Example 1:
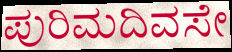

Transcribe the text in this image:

ಪುರಿಮದಿವಸೇ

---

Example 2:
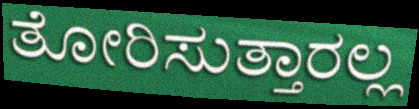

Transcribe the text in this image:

ತೋರಿಸುತ್ತಾರಲ್ಲ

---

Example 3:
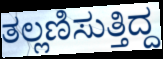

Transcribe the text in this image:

ತಲ್ಲಣಿಸುತ್ತಿದ್ದ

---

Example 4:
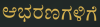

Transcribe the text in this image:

ಆಭರಣಗಳಿಗೆ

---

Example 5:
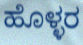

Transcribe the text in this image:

ಹೊಳ್ಳರ